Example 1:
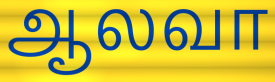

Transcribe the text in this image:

ஆலவா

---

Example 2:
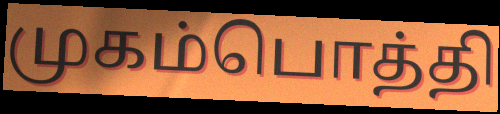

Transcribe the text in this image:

முகம்பொத்தி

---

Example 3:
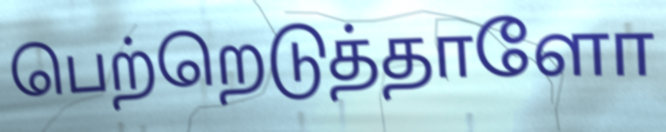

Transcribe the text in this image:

பெற்றெடுத்தாளோ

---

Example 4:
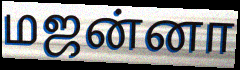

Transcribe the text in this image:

மஜன்னா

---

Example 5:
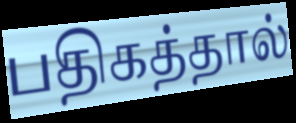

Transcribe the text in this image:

பதிகத்தால்